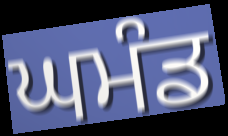
ਘਮੰਡ